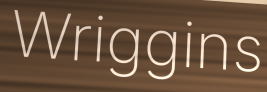
Wriggins